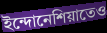
ইন্দোনেশিয়াতেও